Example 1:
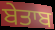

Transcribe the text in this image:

ਬੇਤਾਬ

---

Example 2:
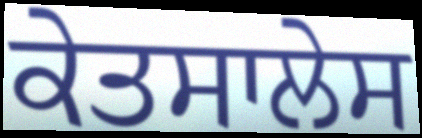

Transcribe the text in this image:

ਕੇਤਸਾਲੇਸ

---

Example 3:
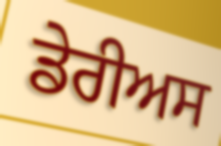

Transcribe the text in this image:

ਡੇਰੀਅਸ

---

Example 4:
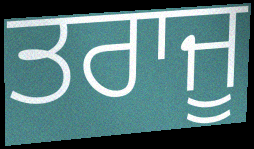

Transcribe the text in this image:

ਤਰਾਜੂ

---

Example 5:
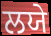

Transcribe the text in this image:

ਲਯੇ